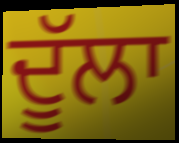
ਦੂੱਲਾ